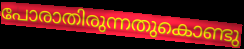
പോരാതിരുന്നതുകൊണ്ടു